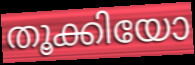
തൂക്കിയോ